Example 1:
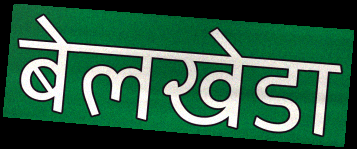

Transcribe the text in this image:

बेलखेडा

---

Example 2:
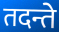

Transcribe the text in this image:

तदन्ते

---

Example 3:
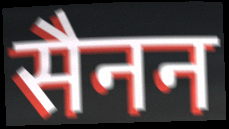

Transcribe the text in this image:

सैनन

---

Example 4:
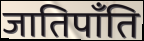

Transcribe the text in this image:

जातिपाँति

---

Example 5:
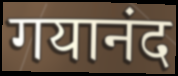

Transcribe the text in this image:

गयानंद